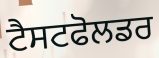
ਟੈਸਟਫੋਲਡਰ